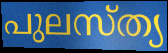
പുലസ്ത്യ